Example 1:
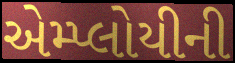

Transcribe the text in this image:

એમ્પ્લોયીની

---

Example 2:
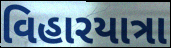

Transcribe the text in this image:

વિહારયાત્રા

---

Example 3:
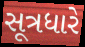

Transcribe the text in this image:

સૂત્રધારે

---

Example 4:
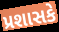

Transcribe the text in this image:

પ્રશાસકે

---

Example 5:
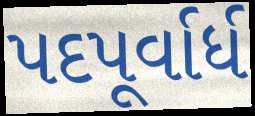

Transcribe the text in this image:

પદપૂર્વાર્ધ